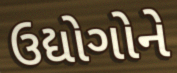
ઉદ્યોગોને